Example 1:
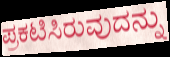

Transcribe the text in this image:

ಪ್ರಕಟಿಸಿರುವುದನ್ನು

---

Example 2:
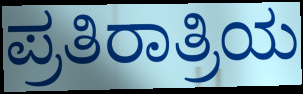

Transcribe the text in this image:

ಪ್ರತಿರಾತ್ರಿಯ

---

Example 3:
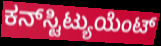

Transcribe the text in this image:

ಕನ್‌ಸ್ಟಿಟ್ಯುಯೆಂಟ್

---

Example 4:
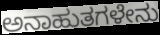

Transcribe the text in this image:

ಅನಾಹುತಗಳೇನು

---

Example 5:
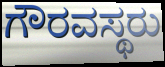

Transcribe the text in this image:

ಗೌರವಸ್ಥರು